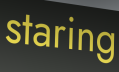
staring